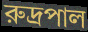
রুদ্রপাল